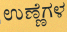
ಉಣ್ಣೆಗಳ